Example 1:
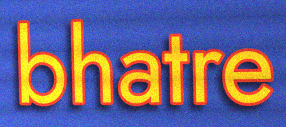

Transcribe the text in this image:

bhatre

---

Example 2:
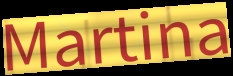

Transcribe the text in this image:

Martina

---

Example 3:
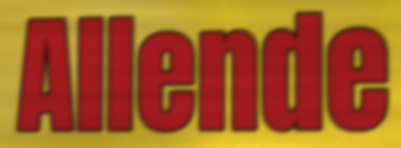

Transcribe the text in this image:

Allende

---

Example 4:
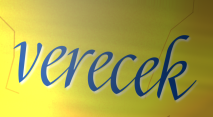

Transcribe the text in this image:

verecek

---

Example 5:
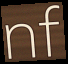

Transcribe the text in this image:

nf